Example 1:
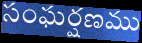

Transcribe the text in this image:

సంఘర్షణము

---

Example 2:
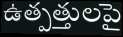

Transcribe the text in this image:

ఉత్పత్తులపై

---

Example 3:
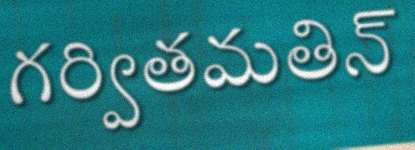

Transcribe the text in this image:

గర్వితమతిన్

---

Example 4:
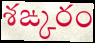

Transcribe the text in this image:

శఙ్కరం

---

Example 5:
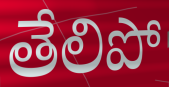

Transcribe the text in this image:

తేలిపో